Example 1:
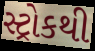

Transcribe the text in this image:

સ્ટ્રોકથી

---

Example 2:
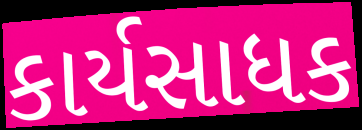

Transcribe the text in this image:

કાર્યસાધક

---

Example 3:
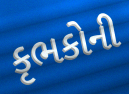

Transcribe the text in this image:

કૃભકોની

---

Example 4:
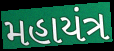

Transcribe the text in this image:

મહાયંત્ર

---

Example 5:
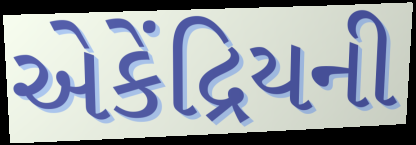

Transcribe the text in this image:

એકેંદ્રિયની